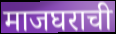
माजघराची